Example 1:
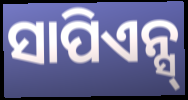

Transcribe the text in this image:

ସାପିଏନ୍ସ୍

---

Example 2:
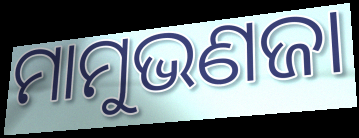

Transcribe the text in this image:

ମାମୁଭଣଜା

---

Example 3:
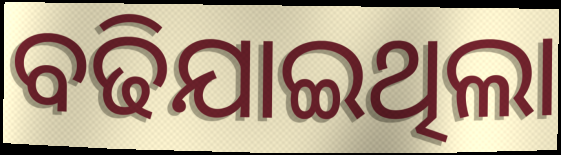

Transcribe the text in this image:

ବଢିଯାଇଥିଲା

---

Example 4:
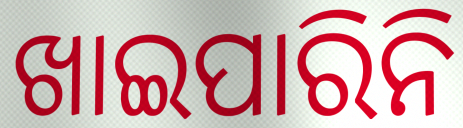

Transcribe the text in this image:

ଖାଇପାରିନି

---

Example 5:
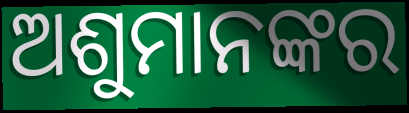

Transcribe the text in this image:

ଅଶୁମାନଙ୍କର